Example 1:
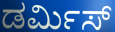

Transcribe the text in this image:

ಡರ್ಮಿಸ್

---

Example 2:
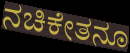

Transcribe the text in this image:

ನಚಿಕೇತನೂ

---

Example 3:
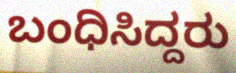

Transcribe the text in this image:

ಬಂಧಿಸಿದ್ದರು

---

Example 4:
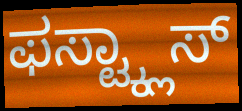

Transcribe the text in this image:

ಫಸ್ಟ್ಕ್ಲಾಸ್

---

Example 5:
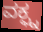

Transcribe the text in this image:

ವಕ್ಫ್ನ